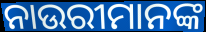
ନାଉରୀମାନଙ୍କ